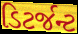
ડિટર્જન્ટ